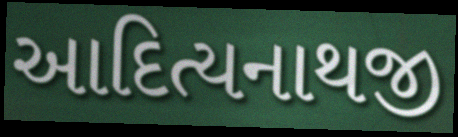
આદિત્યનાથજી